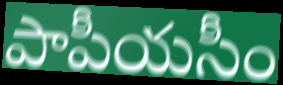
పాపీయసీం